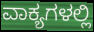
ವಾಕ್ಯಗಳಲ್ಲಿ